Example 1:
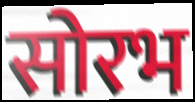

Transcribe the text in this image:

सोरभ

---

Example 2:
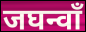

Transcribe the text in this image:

जघन्वाँ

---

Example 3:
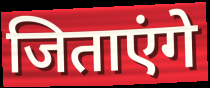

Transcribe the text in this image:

जिताएंगे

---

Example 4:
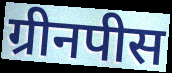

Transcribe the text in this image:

ग्रीनपीस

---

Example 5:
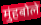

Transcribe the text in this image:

मुंहबोले